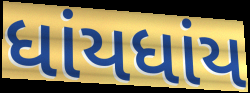
ધાંયધાંય